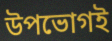
উপভোগই